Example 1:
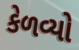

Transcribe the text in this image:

કેળવ્યો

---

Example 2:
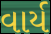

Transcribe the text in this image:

વાર્ય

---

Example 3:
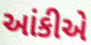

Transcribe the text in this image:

આંકીએ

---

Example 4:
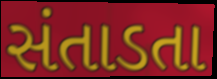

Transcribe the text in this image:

સંતાડતા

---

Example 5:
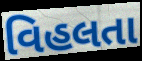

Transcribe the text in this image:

વિહલતા